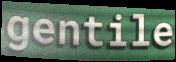
gentile